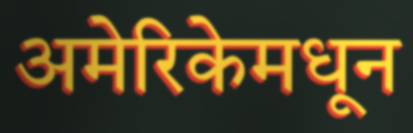
अमेरिकेमधून